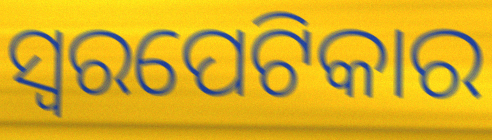
ସ୍ଵରପେଟିକାର